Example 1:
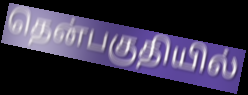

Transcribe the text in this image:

தென்பகுதியில்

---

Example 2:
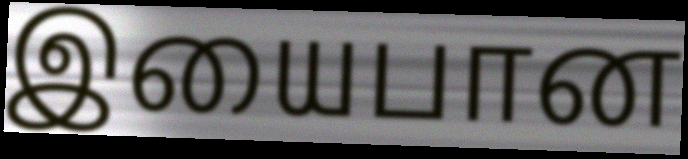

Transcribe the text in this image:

இயைபான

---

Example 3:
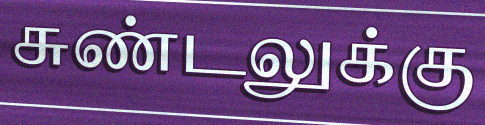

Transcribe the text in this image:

சுண்டலுக்கு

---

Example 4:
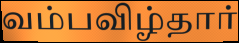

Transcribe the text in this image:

வம்பவிழ்தார்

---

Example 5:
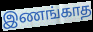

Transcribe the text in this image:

இணங்காத